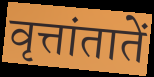
वृत्तांतातें